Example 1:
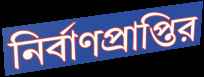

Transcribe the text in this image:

নির্বাণপ্রাপ্তির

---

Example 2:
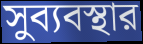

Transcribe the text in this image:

সুব্যবস্থার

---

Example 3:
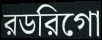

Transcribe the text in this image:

রডরিগো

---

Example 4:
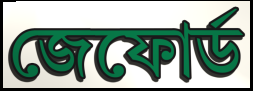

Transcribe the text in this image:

জেফোর্ড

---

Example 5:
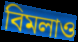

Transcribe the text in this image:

বিমলাও